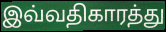
இவ்வதிகாரத்து